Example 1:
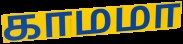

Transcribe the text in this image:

காமமா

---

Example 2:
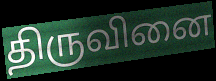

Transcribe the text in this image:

திருவினை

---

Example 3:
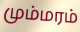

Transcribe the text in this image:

மும்மரம்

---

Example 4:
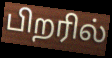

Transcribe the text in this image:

பிறரில்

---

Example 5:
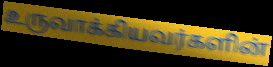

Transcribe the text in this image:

உருவாக்கியவர்களின்